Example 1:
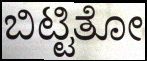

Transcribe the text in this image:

ಬಿಟ್ಟಿತೋ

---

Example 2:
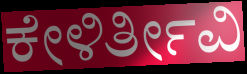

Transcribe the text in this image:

ಕೇಳಿರ್ತೀವಿ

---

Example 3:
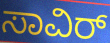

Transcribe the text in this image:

ಸಾವಿರ್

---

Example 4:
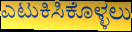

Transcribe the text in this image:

ಎಟುಕಿಸಿಕೊಳ್ಳಲು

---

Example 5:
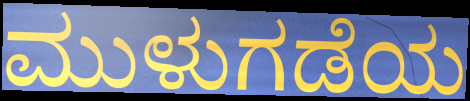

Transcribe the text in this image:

ಮುಳುಗಡೆಯ